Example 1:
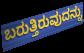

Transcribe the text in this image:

ಬರುತ್ತಿರುವುದನ್ನು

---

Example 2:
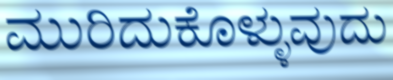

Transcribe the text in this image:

ಮುರಿದುಕೊಳ್ಳುವುದು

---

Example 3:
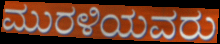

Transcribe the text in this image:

ಮುರಳಿಯವರು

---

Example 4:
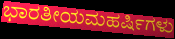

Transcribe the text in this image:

ಭಾರತೀಯಮಹರ್ಷಿಗಳು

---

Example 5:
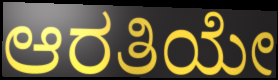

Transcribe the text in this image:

ಆರತಿಯೇ